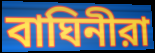
বাঘিনীরা